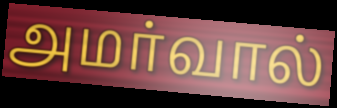
அமர்வால்